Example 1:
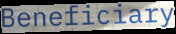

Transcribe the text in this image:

Beneficiary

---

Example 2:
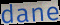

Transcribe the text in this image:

dane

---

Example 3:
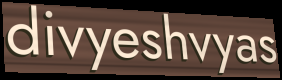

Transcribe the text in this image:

divyeshvyas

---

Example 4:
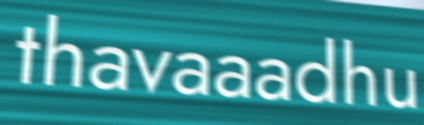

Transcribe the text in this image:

thavaaadhu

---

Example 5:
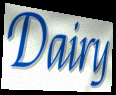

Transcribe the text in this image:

Dairy